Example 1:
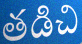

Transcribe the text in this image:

తడిచి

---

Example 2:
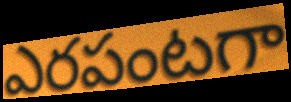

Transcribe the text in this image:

ఎరపంటగా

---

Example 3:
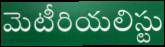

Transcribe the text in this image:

మెటీరియలిస్టు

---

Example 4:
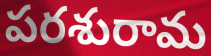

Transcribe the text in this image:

పరశురామ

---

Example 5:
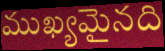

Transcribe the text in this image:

ముఖ్యమైనది